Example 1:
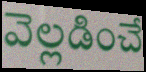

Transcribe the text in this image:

వెల్లడించే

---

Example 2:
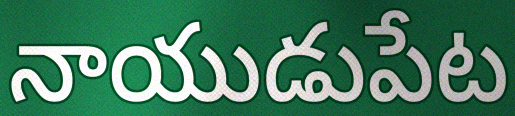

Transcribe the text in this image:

నాయుడుపేట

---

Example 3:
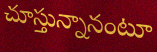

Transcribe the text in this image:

చూస్తున్నానంటూ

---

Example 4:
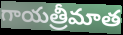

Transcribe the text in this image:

గాయత్రీమాత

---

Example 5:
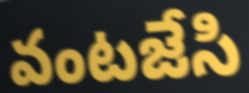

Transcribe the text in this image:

వంటజేసి